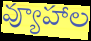
వ్యూహాల